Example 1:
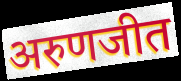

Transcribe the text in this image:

अरुणजीत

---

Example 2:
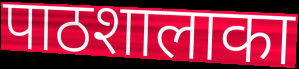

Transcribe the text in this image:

पाठशालाका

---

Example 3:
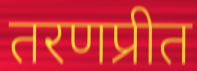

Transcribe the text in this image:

तरणप्रीत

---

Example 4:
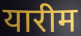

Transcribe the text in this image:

यारीम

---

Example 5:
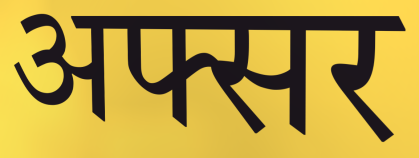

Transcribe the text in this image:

अफ्सर